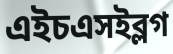
এইচএসইব্লগ